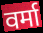
वर्मा